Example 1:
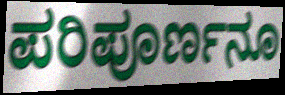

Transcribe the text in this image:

ಪರಿಪೂರ್ಣನೂ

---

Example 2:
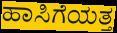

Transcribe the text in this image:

ಹಾಸಿಗೆಯತ್ತ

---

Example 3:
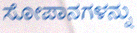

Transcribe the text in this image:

ಸೋಪಾನಗಳನ್ನು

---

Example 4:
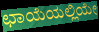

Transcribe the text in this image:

ಛಾಯೆಯಲ್ಲಿಯೇ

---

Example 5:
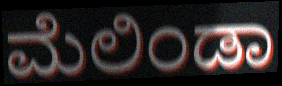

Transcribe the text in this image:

ಮೆಲಿಂಡಾ